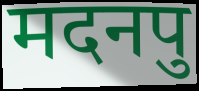
मदनपु